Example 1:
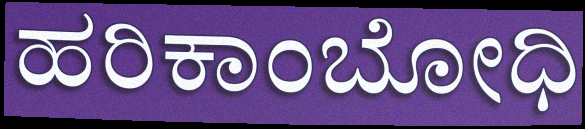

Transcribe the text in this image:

ಹರಿಕಾಂಬೋಧಿ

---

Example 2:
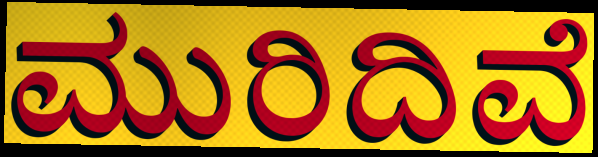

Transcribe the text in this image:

ಮುರಿದಿವೆ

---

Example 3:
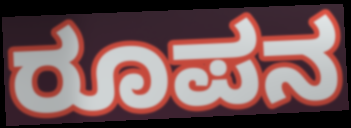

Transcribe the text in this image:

ರೂಪನ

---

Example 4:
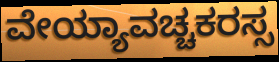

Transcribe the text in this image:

ವೇಯ್ಯಾವಚ್ಚಕರಸ್ಸ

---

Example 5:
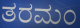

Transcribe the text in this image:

ತರಮಂ